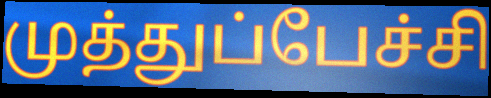
முத்துப்பேச்சி